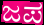
ಜಪ